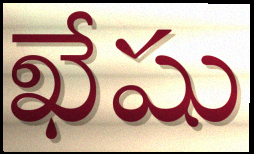
ఖేషు